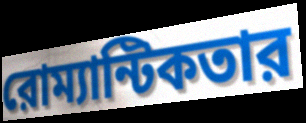
রোম্যান্টিকতার